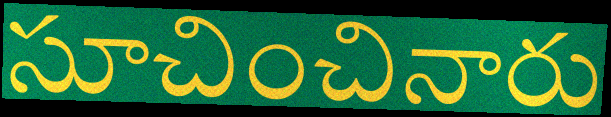
సూచించినారు